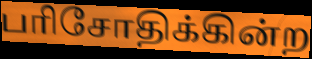
பரிசோதிக்கின்ற